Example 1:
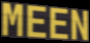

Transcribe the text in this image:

MEEN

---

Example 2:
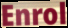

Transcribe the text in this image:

Enrol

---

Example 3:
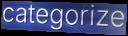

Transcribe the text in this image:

categorize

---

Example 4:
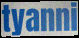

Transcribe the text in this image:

tyanni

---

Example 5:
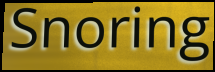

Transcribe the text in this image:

Snoring